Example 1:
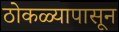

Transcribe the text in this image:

ठोकळ्यापासून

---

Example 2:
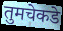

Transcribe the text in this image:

तुमचेकडे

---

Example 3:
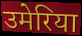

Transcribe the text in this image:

उमेरिया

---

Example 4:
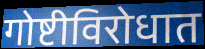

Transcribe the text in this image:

गोष्टीविरोधात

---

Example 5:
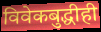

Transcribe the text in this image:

विवेकबुद्धीही